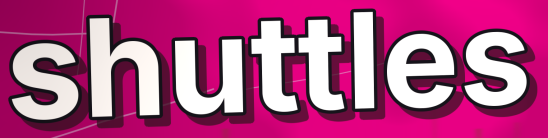
shuttles